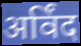
अर्विंद